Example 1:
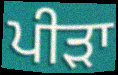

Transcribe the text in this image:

ਪੀੜਾ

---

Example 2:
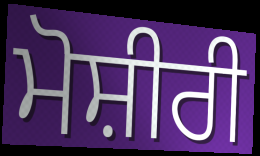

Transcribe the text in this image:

ਮੋਸ਼ੀਰੀ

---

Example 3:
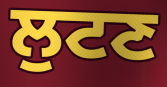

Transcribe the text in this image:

ਲੁਟਣ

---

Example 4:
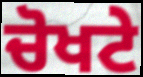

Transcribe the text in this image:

ਚੋਖਟੇ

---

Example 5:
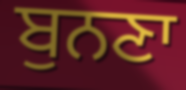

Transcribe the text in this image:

ਬੁਨਣਾ